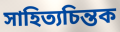
সাহিত্যচিন্তক